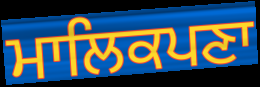
ਮਾਲਿਕਪਣਾ